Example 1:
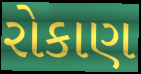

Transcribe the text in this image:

રોકાણ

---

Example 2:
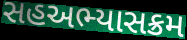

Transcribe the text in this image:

સહઅભ્યાસક્રમ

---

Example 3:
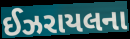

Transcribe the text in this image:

ઈઝરાયલના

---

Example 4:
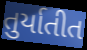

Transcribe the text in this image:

તુર્યાતીત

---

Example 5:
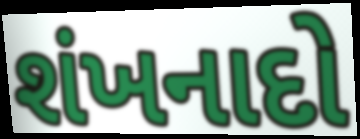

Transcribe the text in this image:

શંખનાદો